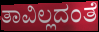
ತಾವಿಲ್ಲದಂತೆ